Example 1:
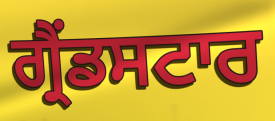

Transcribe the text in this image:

ਗ੍ਰੈਂਡਸਟਾਰ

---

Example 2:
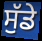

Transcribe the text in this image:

ਸੁੱਡੇ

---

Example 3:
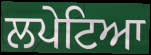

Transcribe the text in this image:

ਲਪੇਟਿਆ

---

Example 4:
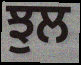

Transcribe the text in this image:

ਝੁਲ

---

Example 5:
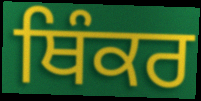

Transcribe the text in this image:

ਥਿੰਕਰ